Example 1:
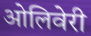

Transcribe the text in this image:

ओलिवेरी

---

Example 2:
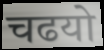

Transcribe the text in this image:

चढयो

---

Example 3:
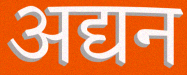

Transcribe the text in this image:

अद्यन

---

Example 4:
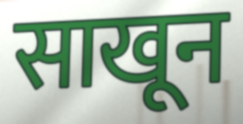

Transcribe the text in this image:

साखून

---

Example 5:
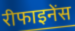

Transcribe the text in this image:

रीफाइनेंस